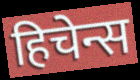
हिचेन्स